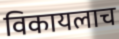
विकायलाच